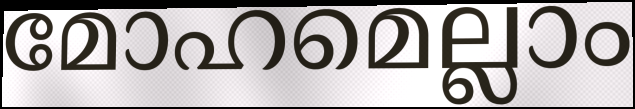
മോഹമെല്ലാം